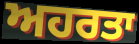
ਅਹਰਤਾ